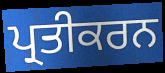
ਪ੍ਰਤੀਕਰਨ